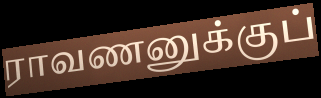
ராவணனுக்குப்